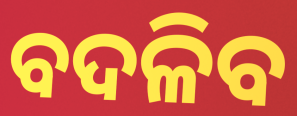
ବଦଳିବ